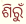
ଶିରୁଁ